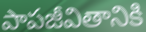
పాపజీవితానికి